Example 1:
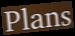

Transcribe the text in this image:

Plans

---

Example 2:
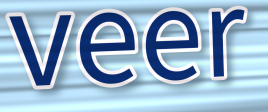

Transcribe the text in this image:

veer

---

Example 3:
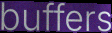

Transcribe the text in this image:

buffers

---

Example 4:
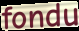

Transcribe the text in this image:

fondu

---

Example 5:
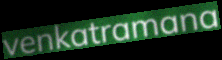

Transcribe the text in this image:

venkatramana